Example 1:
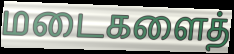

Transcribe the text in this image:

மடைகளைத்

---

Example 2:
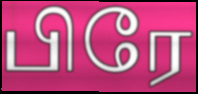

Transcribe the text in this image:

பிரே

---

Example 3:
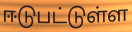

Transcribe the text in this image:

ஈடுபட்டுள்ள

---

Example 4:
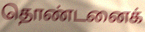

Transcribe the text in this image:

தொண்டனைக்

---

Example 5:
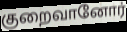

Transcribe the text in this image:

குறைவானோர்